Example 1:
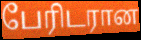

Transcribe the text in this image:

பேரிடரான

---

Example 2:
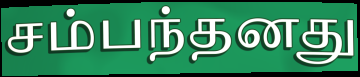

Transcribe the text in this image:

சம்பந்தனது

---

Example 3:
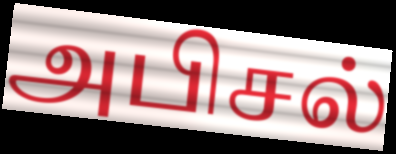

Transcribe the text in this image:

அபிசல்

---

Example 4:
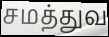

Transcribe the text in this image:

சமத்துவ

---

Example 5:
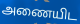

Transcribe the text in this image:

அணையிட